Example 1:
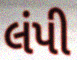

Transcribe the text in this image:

લંપી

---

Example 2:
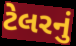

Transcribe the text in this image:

ટેલરનું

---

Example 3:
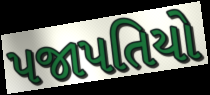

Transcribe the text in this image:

પજાપતિયો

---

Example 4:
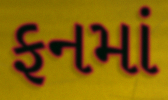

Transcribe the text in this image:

ફનમાં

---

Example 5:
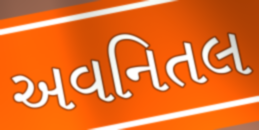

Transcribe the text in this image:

અવનિતલ